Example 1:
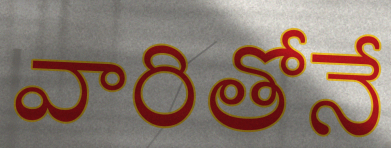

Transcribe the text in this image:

వారితోనే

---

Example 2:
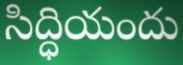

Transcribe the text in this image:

సిద్ధియందు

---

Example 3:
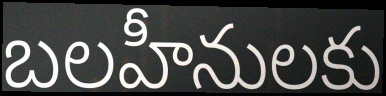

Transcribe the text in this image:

బలహీనులకు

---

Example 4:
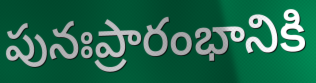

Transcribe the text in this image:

పునఃప్రారంభానికి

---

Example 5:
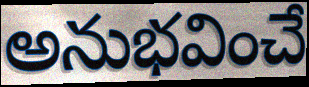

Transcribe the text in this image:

అనుభవించే